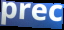
prec